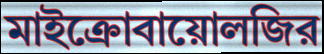
মাইক্রোবায়োলজির